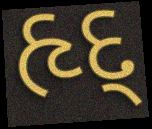
હૃદ્